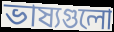
ভাষ্যগুলো